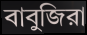
বাবুজিরা